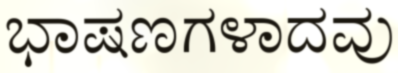
ಭಾಷಣಗಳಾದವು